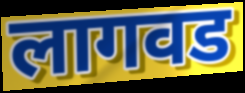
लागवड